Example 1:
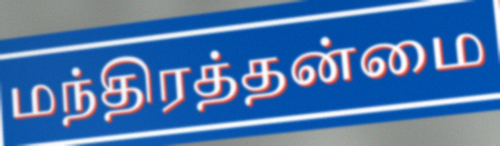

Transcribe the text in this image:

மந்திரத்தன்மை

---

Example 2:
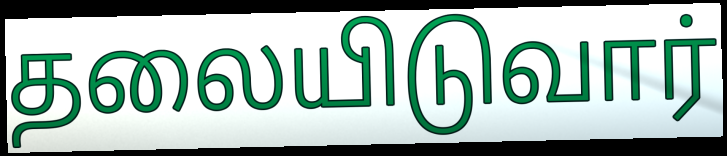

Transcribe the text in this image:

தலையிடுவார்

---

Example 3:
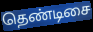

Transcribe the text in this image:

தெண்டிசை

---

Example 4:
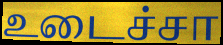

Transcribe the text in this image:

உடைச்சா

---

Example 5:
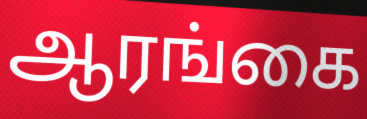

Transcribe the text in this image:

ஆரங்கை